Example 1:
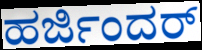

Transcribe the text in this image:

ಹರ್ಜಿಂದರ್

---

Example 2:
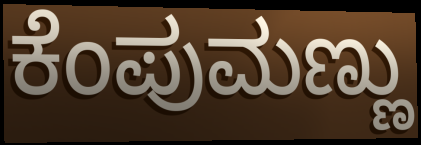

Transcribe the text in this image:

ಕೆಂಪುಮಣ್ಣು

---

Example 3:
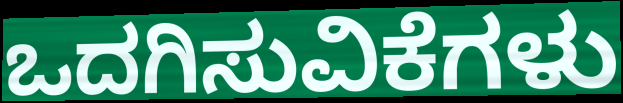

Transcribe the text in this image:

ಒದಗಿಸುವಿಕೆಗಳು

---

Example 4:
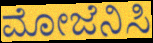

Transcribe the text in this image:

ಮೋಜೆನಿಸಿ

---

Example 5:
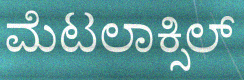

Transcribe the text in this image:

ಮೆಟಲಾಕ್ಸಿಲ್